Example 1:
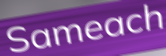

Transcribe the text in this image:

Sameach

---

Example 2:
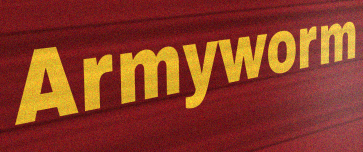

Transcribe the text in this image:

Armyworm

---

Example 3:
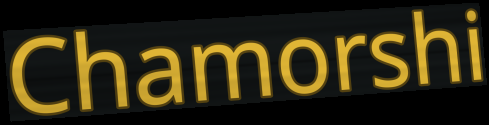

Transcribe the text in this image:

Chamorshi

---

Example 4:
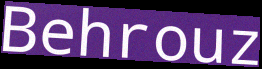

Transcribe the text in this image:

Behrouz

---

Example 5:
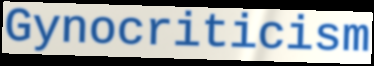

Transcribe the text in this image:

Gynocriticism